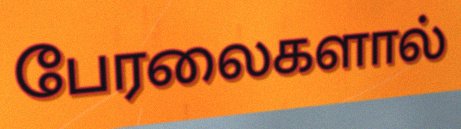
பேரலைகளால்